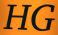
HG